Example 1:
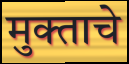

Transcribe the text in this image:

मुक्ताचे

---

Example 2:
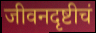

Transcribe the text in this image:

जीवनदृष्टीचं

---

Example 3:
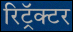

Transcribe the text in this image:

रिट्रॅक्टर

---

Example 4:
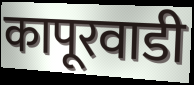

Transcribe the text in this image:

कापूरवाडी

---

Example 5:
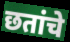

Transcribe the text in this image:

छतांचे